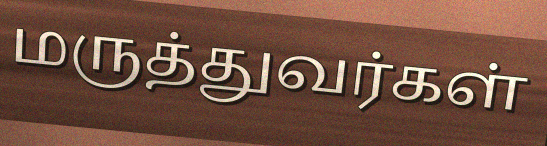
மருத்துவர்கள்